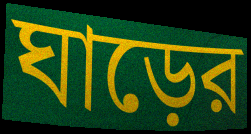
ঘাড়ের